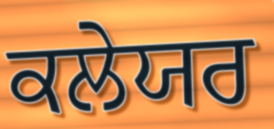
ਕਲੇਯਰ